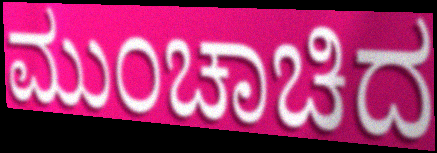
ಮುಂಚಾಚಿದ